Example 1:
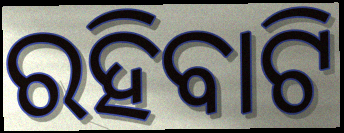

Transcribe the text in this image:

ରହିବାଟି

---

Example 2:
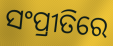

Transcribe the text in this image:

ସଂପ୍ରୀତିରେ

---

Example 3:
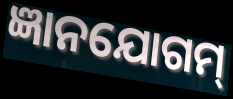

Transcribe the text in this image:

ଜ୍ଞାନଯୋଗମ୍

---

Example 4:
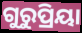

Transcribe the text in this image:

ଗୁରୁପ୍ରିୟା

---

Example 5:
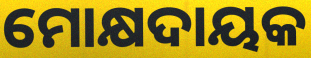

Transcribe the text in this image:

ମୋକ୍ଷଦାୟକ